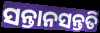
ସନ୍ତାନସନ୍ତତି